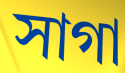
সাগা